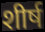
शीर्ष